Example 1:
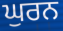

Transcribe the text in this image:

ਘੁਰਨ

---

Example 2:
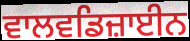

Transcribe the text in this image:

ਵਾਲਵਡਿਜ਼ਾਈਨ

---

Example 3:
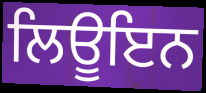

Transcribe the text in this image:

ਲਿਊਇਨ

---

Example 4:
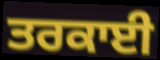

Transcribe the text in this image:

ਤਰਕਾਈ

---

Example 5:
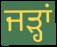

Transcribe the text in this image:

ਜੜ੍ਹਾਂ